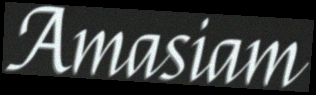
Amasiam